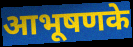
आभूषणके